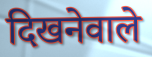
दिखनेवाले